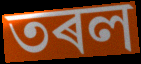
তৰল